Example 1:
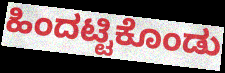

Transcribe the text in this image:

ಹಿಂದಟ್ಟಿಕೊಂಡು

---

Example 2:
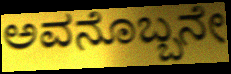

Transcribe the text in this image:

ಅವನೊಬ್ಬನೇ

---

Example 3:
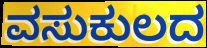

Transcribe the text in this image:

ವಸುಕುಲದ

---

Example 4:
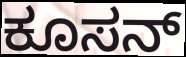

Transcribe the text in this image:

ಕೂಸನ್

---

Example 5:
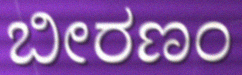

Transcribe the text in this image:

ಬೀರಣಂ